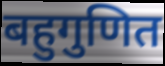
बहुगुणित